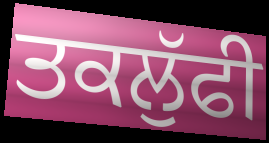
ਤਕਲੁੱਫੀ